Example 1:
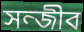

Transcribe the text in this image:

সন্জীব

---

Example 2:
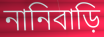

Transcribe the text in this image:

নানিবাড়ি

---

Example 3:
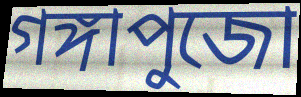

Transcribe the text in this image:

গঙ্গাপুজো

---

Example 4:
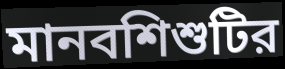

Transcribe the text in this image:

মানবশিশুটির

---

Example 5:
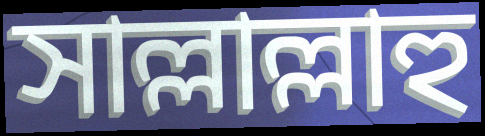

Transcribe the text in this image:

সাল্লাল্লাহু